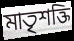
মাতৃশক্তি